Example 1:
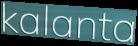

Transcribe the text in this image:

kalanta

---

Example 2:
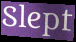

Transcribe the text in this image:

Slept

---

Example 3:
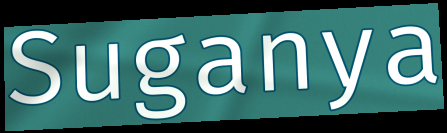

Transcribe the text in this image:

Suganya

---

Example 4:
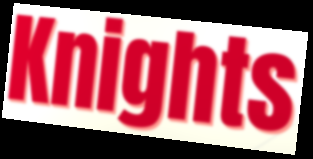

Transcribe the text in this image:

Knights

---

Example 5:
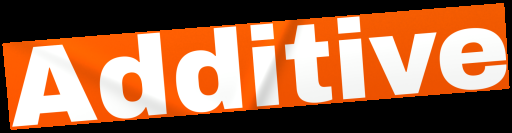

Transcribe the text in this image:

Additive